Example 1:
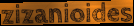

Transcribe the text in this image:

zizanioides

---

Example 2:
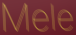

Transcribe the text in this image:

Mele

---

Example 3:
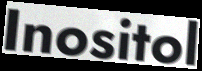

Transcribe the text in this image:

Inositol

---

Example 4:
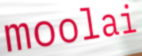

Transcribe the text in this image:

moolai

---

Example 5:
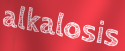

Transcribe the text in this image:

alkalosis